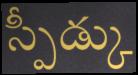
స్పీడ్కు